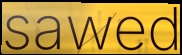
sawed